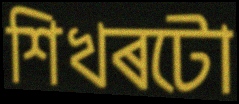
শিখৰটো